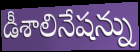
డీశాలినేషన్ను